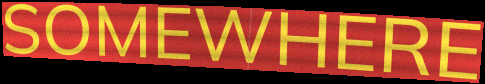
SOMEWHERE